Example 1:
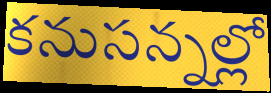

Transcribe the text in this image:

కనుసన్నల్లో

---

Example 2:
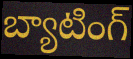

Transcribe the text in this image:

బ్యాటింగ్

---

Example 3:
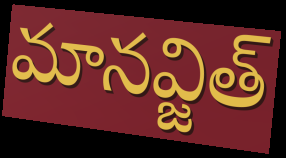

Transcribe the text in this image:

మానవ్జిత్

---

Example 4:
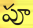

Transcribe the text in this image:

పూ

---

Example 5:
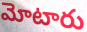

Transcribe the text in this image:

మోటారు